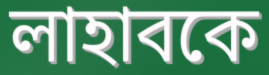
লাহাবকে